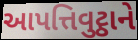
આપત્તિવુટ્ઠાને